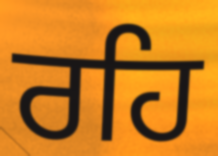
ਰਹਿ